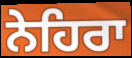
ਨੇਹਿਰਾ